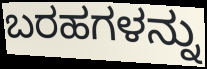
ಬರಹಗಳನ್ನು